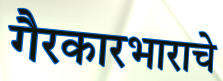
गैरकारभाराचे